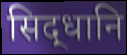
सिद्धानि